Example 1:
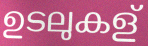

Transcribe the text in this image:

ഉടലുകള്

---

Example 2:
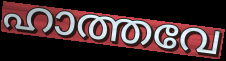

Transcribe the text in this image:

ഹാത്തവേ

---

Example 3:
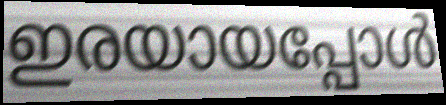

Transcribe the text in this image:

ഇരയായപ്പോൾ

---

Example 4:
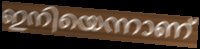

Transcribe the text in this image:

ഇനിയെന്നാണ്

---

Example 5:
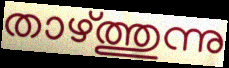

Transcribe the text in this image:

താഴ്ത്തുന്നു